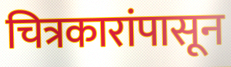
चित्रकारांपासून